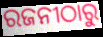
ରଜନୀଠାରୁ